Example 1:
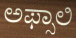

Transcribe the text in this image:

ಅಫ್ಸಾಲಿ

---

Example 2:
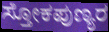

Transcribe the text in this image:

ಸ್ತೋಕಪುಣ್ಯರ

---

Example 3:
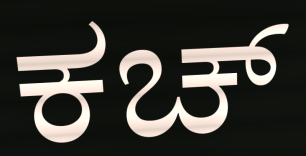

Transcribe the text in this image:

ಕಚ್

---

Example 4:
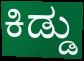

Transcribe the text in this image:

ಕಿಡ್ಡು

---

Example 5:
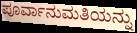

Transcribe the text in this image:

ಪೂರ್ವಾನುಮತಿಯನ್ನು